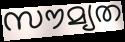
സൗമ്യത